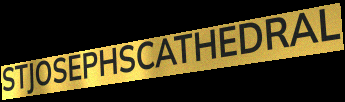
STJOSEPHSCATHEDRAL